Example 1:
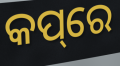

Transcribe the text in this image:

କପ୍‌ରେ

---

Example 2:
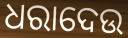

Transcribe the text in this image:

ଧରାଦେଉ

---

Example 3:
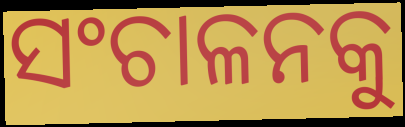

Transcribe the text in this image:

ସଂଚାଳନକୁ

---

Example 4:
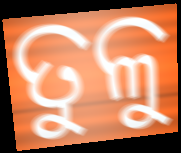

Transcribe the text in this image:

ତୁଳୁ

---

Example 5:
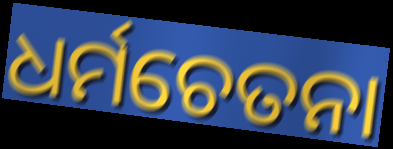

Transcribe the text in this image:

ଧର୍ମଚେତନା